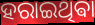
ହରାଇଥିଵା